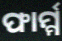
ଫାର୍ମ୍ମ